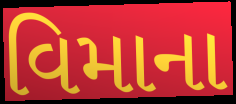
વિમાના